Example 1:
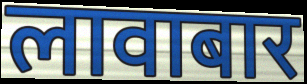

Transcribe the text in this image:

लावाबार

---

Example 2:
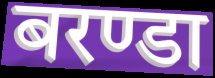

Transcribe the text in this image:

बरण्डा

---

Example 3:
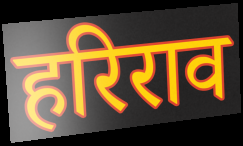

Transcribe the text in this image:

हरिराव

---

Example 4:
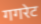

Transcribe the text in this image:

गगरेट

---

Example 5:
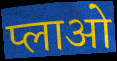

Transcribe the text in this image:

प्लाओ